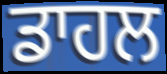
ਡਾਹਲ